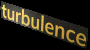
turbulence